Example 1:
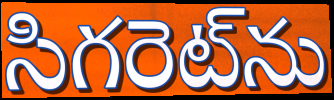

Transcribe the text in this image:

సిగరెట్‌ను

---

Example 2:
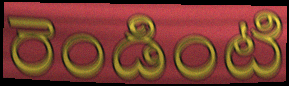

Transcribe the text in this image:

రెండింటి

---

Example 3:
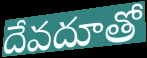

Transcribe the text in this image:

దేవదూతో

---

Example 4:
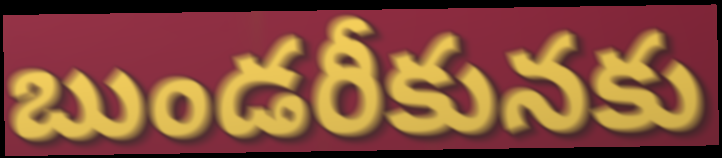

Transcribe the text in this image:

బుండరీకునకు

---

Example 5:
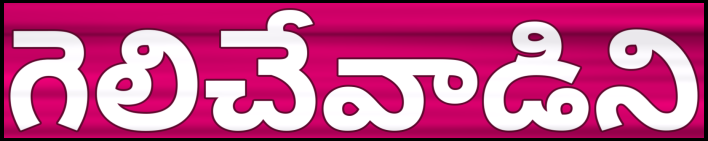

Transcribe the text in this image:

గెలిచేవాడిని